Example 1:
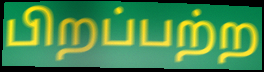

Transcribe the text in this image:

பிறப்பற்ற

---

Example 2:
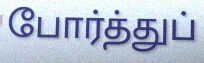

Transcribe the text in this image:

போர்த்துப்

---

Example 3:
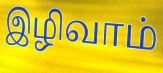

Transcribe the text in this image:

இழிவாம்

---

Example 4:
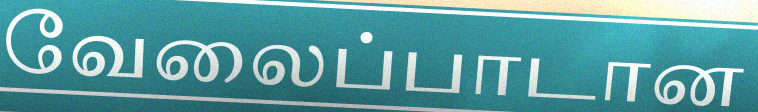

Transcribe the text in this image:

வேலைப்பாடான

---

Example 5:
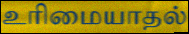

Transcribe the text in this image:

உரிமையாதல்